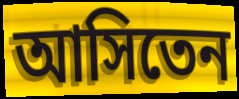
আসিতেন